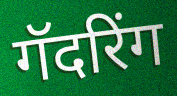
गॅदरिंग